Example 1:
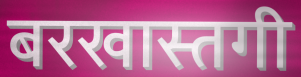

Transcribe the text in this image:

बरखास्तगी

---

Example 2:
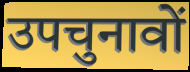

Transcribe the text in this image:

उपचुनावों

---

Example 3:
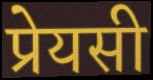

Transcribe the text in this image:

प्रेयसी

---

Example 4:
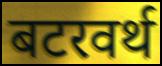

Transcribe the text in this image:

बटरवर्थ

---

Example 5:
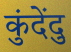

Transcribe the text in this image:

कुंदेंदु